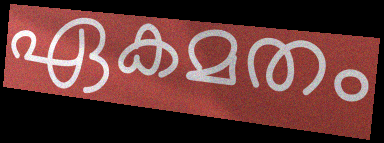
ഏകമതം